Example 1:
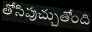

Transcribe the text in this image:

తోసిపుచ్చుతోంది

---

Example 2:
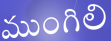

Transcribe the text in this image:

ముంగిలి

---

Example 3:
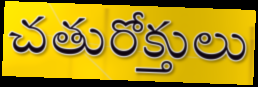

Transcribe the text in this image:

చతురోక్తులు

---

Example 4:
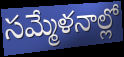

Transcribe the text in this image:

సమ్మేళనాల్లో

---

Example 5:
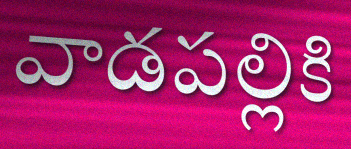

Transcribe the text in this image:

వాడపల్లికి